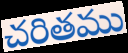
చరితము